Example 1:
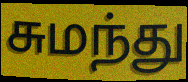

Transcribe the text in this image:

சுமந்து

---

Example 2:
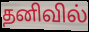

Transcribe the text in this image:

தனிவில்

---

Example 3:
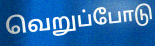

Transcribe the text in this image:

வெறுப்போடு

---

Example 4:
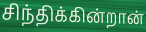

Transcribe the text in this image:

சிந்திக்கின்றான்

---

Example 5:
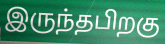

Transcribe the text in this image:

இருந்தபிறகு